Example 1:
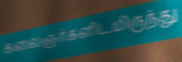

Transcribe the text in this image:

கலைஞர்களிடமிருந்து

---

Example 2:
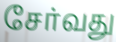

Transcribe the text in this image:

சேர்வது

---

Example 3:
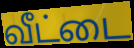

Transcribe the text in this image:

வீட்டை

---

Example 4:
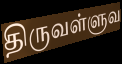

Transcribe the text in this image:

திருவள்ளுவ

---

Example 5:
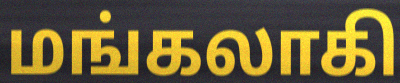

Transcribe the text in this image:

மங்கலாகி